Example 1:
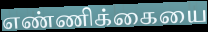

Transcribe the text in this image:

எண்ணிக்கையை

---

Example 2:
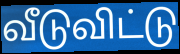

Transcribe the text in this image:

வீடுவிட்டு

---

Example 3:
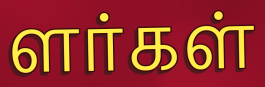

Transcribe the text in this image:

ளர்கள்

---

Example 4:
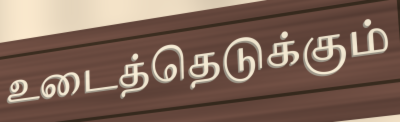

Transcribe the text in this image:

உடைத்தெடுக்கும்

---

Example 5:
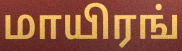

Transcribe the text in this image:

மாயிரங்